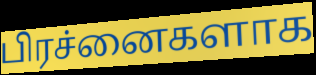
பிரச்னைகளாக